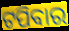
ଟପିବାର